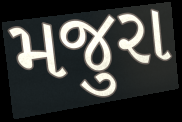
મજુરા